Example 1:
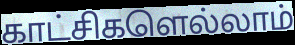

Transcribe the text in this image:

காட்சிகளெல்லாம்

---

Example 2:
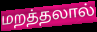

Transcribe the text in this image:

மறத்தலால்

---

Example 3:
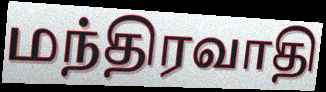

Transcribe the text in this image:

மந்திரவாதி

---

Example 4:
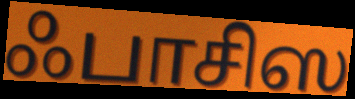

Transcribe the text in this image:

ஃபாசிஸ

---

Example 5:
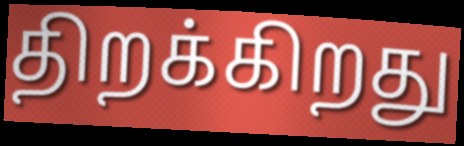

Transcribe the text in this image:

திறக்கிறது